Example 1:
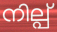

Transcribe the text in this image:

നില്പ്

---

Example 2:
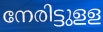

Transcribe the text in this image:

നേരിട്ടുളള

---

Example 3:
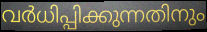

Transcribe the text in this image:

വർധിപ്പിക്കുന്നതിനും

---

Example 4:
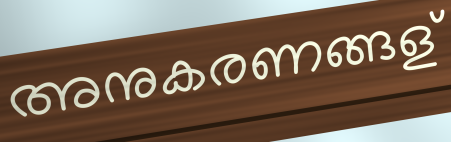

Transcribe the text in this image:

അനുകരണങ്ങള്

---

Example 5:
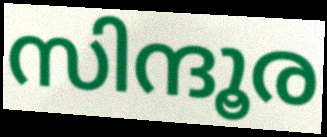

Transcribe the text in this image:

സിന്ദൂര